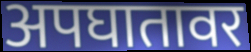
अपघातावर